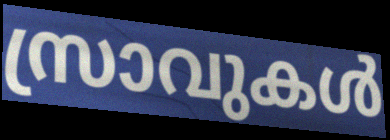
സ്രാവുകൾ